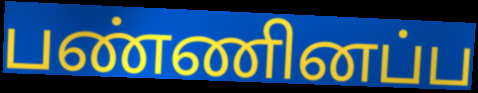
பண்ணினப்ப